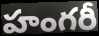
హంగరీ